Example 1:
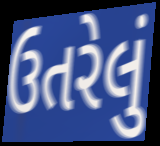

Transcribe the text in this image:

ઉતરેલું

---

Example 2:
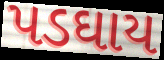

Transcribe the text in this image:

પડઘાય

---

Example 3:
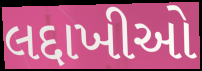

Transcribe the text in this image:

લદ્દાખીઓ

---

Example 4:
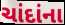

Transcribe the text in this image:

ચાંદાંના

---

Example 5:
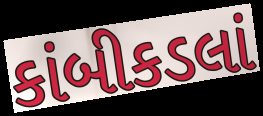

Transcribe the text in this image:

કાંબીકડલાં